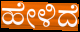
ಹೇಳಿದೆ